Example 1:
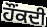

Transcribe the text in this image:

ਹੌਂਕਦੀ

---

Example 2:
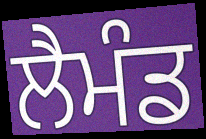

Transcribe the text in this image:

ਲੈਮੰਡ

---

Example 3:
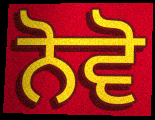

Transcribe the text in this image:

ਨੋਵੋ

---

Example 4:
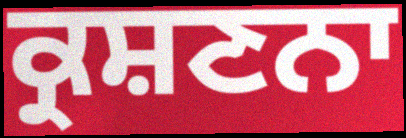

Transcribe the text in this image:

ਕ੍ਰਸ਼ਣਨਾ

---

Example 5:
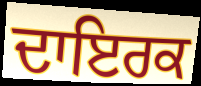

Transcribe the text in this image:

ਦਾਇਰਕ